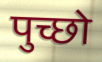
पुच्छो